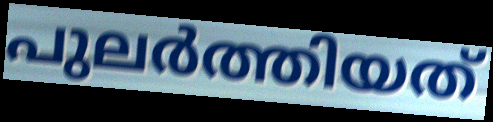
പുലർത്തിയത്